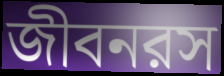
জীবনরস